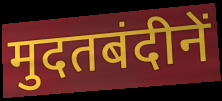
मुदतबंदीनें